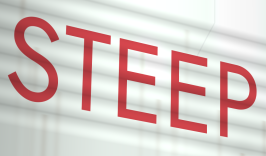
STEEP